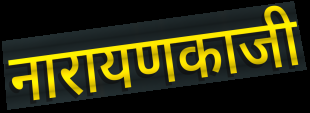
नारायणकाजी